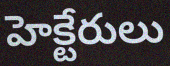
హెక్టేరులు